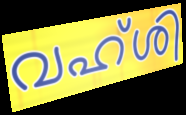
വഹ്ശി